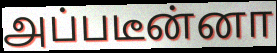
அப்படீன்னா